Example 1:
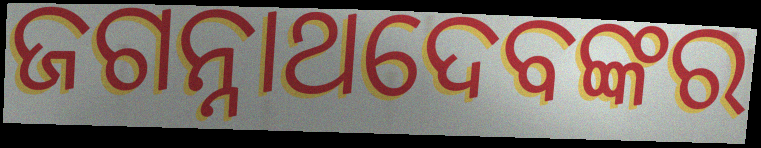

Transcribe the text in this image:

ଜଗନ୍ନାଥଦେବଙ୍କର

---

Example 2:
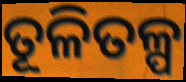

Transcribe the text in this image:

ତୂଳିତଳ୍ପ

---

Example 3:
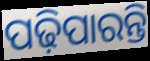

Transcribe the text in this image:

ପଢ଼ିପାରନ୍ତି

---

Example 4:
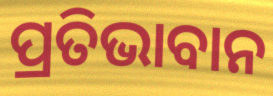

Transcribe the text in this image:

ପ୍ରତିଭାବାନ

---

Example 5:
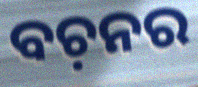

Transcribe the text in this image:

ବଚ଼ନର